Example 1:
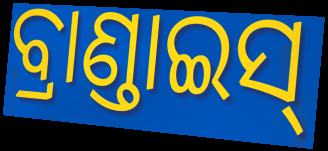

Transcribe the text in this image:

ବ୍ରାଣ୍ଡାଇସ୍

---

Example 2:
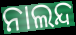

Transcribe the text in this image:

ନାଲନ୍ଦ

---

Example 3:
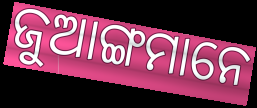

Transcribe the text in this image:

ଜୁଆଙ୍ଗମାନେ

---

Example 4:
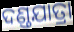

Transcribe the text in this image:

ଦଣ୍ଡଯାତ୍ରା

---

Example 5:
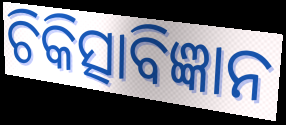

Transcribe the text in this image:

ଚିକିତ୍ସାବିଜ୍ଞାନ